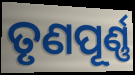
ତୃଣପୂର୍ଣ୍ଣ